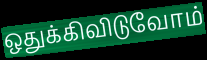
ஒதுக்கிவிடுவோம்